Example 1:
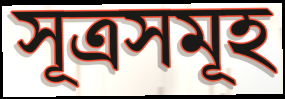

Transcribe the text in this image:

সূত্রসমূহ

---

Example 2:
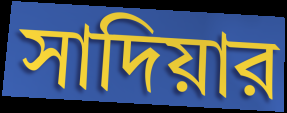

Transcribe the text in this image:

সাদিয়ার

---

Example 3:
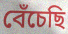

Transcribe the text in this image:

বেঁচেছি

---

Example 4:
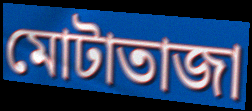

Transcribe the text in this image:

মোটাতাজা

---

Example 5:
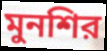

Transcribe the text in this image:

মুনশির